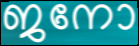
ജനോ